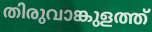
തിരുവാങ്കുളത്ത്